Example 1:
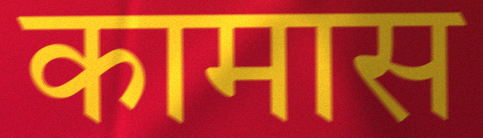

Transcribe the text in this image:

कामास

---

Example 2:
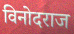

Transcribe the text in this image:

विनोदराज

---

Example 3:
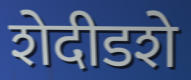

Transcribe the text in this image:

शेदीडशे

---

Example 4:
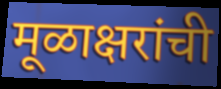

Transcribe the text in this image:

मूळाक्षरांची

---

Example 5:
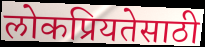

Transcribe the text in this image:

लोकप्रियतेसाठी